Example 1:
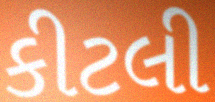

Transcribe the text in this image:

કીટલી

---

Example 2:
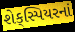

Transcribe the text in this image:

શેક્‌સ્પિયરનાં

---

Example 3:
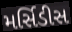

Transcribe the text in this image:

મર્સિડીસ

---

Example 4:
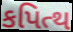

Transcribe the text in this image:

કપિત્થ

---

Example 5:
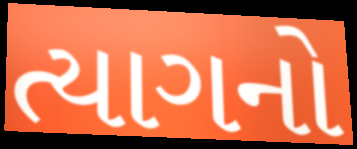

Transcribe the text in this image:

ત્યાગનો